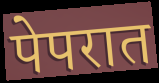
पेपरात